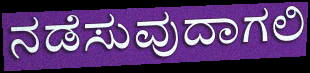
ನಡೆಸುವುದಾಗಲಿ